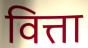
वित्ता